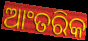
ଆଂତରିକ